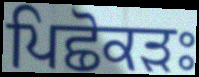
ਪਿਛੋਕੜਃ